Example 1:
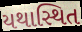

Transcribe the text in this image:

યથાસ્થિત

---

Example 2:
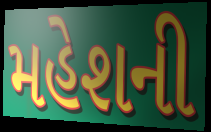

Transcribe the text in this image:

મહેશની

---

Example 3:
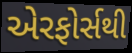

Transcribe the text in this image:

એરફોર્સથી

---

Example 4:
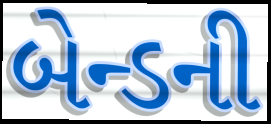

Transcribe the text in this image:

બેન્ડની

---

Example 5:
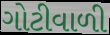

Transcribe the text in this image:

ગોટીવાળી